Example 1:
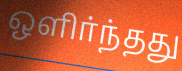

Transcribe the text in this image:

ஒளிர்ந்தது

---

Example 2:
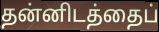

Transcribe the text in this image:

தன்னிடத்தைப்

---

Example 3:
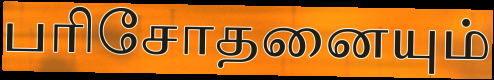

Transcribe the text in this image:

பரிசோதனையும்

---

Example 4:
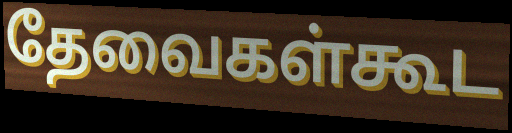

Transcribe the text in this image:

தேவைகள்கூட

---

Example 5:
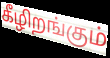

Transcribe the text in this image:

கீழிறங்கும்